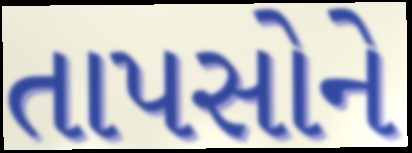
તાપસોને